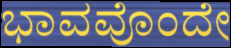
ಭಾವವೊಂದೇ